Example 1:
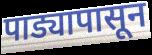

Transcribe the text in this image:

पाड्यापासून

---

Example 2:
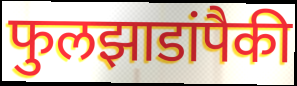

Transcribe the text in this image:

फुलझाडांपैकी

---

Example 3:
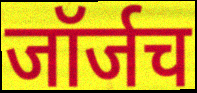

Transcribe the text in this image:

जॉर्जच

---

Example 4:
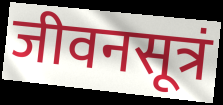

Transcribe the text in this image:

जीवनसूत्रं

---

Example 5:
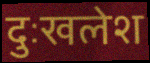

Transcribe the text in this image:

दुःखलेश